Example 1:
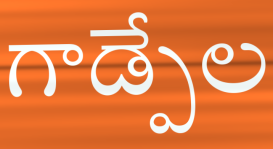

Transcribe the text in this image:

గాడ్పేల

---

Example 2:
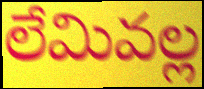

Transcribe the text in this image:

లేమివల్ల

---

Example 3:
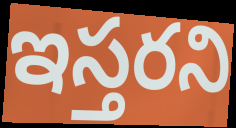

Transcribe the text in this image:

ఇస్తరని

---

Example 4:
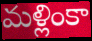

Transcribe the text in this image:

మళ్లింకా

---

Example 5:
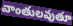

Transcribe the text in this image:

వాంతులవుతూ